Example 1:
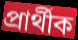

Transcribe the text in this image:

প্ৰাৰ্থীক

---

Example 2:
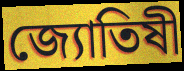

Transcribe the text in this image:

জ্যোতিষী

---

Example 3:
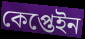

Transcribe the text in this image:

কেপ্তেইন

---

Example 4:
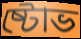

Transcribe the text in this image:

ষ্টোভ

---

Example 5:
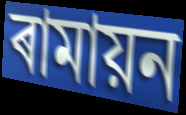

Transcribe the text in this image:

ৰামায়ন